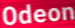
Odeon